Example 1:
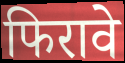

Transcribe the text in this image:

फिरावे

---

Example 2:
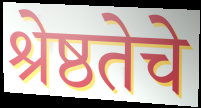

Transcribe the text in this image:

श्रेष्ठतेचे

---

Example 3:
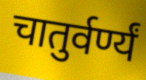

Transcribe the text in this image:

चातुर्वर्ण्यं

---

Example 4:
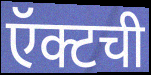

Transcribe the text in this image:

ऍक्टची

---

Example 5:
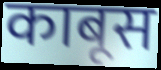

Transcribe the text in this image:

काबूस